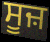
ਸੂਜ਼